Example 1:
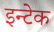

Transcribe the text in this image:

इन्टेक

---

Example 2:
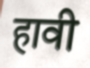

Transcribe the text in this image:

हावी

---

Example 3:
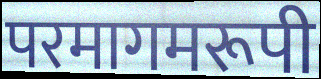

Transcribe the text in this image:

परमागमरूपी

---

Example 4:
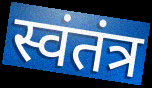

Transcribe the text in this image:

स्वंतंत्र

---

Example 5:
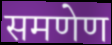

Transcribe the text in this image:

समणेण